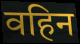
वहिन